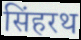
सिंहरथ